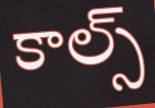
కాల్స్